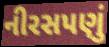
નીરસપણું